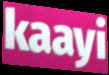
kaayi